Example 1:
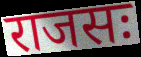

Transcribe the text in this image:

राजसः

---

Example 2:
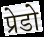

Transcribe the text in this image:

प्रेडो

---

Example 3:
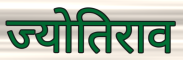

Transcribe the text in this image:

ज्योतिराव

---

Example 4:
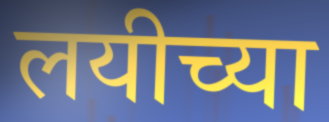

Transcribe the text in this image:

लयीच्या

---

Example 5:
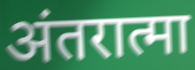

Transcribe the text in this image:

अंतरात्मा